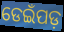
ଡେଇଁପଡ଼